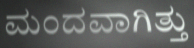
ಮಂದವಾಗಿತ್ತು